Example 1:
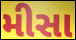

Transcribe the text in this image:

મીસા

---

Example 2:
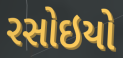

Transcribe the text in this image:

રસોઇયો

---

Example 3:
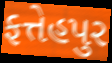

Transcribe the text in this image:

ફત્તેહપુર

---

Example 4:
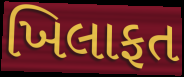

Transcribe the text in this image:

ખિલાફત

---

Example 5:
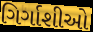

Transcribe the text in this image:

ગિર્ગાશીઓ